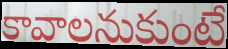
కావాలనుకుంటే